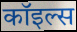
कॉइल्स